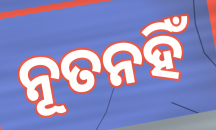
ନୂତନହିଁ